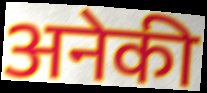
अनेकी